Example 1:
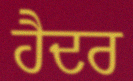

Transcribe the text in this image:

ਹੈਦਰ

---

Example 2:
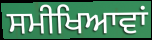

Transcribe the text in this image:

ਸਮੀਖਿਆਵਾਂ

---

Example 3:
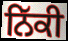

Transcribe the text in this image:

ਨਿੱਕੀ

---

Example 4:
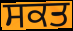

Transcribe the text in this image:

ਸਕਤ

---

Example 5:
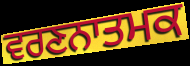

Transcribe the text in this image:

ਵਰਣਨਾਤਮਕ